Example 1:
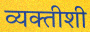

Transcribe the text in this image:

व्यक्‍तीशी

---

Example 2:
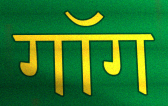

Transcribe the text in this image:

गॉग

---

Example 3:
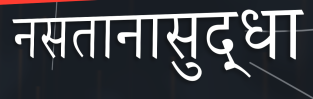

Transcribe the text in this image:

नसतानासुद्धा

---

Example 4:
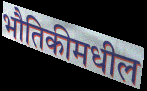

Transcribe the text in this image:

भौतिकीमधील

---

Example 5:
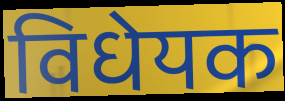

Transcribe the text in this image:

विधेयक